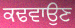
ਕਢਵਾਉਣ